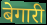
बेगारी